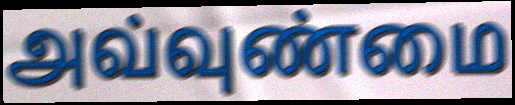
அவ்வுண்மை